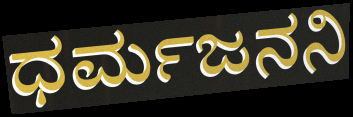
ಧರ್ಮಜನನಿ